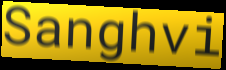
Sanghvi